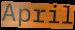
April